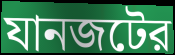
যানজটের